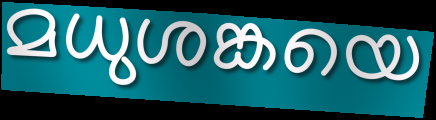
മധുശങ്കയെ